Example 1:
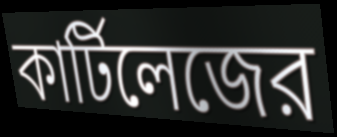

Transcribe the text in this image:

কার্টিলেজের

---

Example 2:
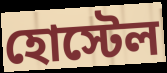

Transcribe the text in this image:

হোস্টেল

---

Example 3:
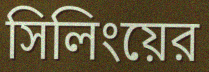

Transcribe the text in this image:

সিলিংয়ের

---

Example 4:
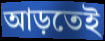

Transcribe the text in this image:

আড়তেই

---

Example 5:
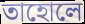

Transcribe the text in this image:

তাহোলে